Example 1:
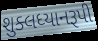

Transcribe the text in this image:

શુક્લધ્યાનરૂપી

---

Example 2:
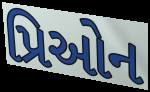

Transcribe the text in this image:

પ્રિઓન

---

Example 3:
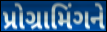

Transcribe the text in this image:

પ્રોગ્રામિંગને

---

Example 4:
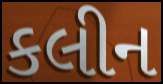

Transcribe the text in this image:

કલીન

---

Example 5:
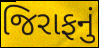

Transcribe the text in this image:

જિરાફનું